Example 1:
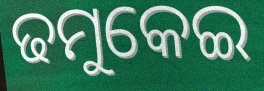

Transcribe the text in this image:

ଢମୁକେଇ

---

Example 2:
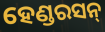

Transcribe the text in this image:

ହେଣ୍ଡରସନ୍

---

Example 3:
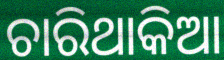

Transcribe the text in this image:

ଚାରିଥାକିଆ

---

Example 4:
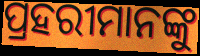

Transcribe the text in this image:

ପ୍ରହରୀମାନଙ୍କୁ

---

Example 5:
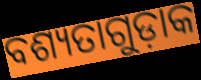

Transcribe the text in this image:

ବଶ୍ୟତାଗୁଡ଼ାକ